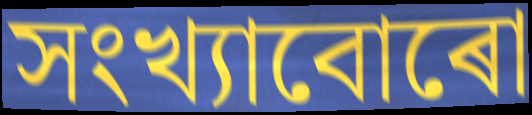
সংখ্যাবোৰো